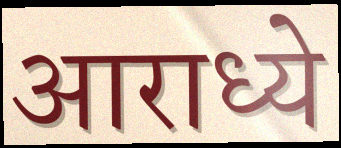
आराध्ये